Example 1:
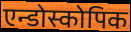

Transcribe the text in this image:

एन्डोस्कोपिक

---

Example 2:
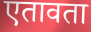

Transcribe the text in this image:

एतावता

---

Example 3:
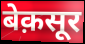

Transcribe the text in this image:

बेक़सूर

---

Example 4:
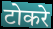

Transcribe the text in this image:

टोकरे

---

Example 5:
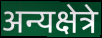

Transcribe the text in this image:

अन्यक्षेत्रे